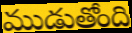
ముడుతోంది